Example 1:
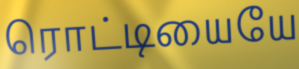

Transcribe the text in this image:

ரொட்டியையே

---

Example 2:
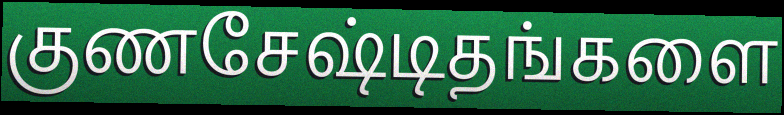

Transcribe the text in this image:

குணசேஷ்டிதங்களை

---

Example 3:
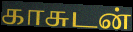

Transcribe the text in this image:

காசுடன்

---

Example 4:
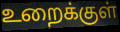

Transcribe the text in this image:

உறைக்குள்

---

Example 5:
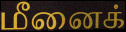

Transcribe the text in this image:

மீனைக்